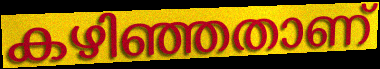
കഴിഞ്ഞതാണ്